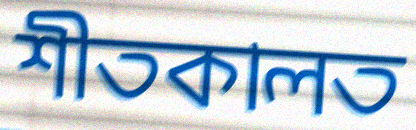
শীতকালত